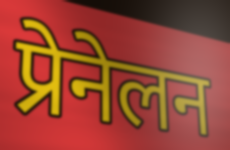
प्रेनेलन